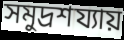
সমুদ্রশয্যায়